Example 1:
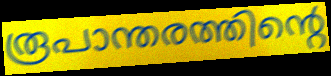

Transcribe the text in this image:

രൂപാന്തരത്തിന്റെ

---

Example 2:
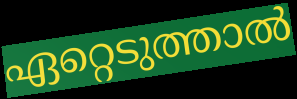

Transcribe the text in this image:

ഏറ്റെടുത്താൽ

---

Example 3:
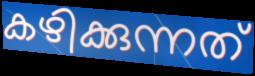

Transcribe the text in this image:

കഴിക്കുന്നത്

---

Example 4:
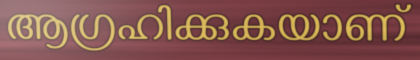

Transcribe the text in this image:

ആഗ്രഹിക്കുകയാണ്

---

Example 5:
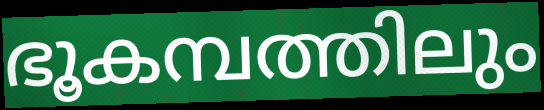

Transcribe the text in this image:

ഭൂകമ്പത്തിലും